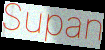
Supan